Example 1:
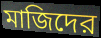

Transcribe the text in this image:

মাজিদের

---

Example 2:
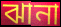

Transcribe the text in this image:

ঝানা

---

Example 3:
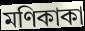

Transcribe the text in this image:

মণিকাকা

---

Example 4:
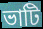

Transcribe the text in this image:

ভাটি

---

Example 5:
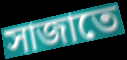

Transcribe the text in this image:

সাজাতে